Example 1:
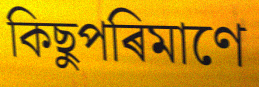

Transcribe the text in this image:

কিছুপৰিমাণে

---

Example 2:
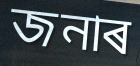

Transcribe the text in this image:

জনাৰ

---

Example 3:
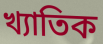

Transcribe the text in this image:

খ্যাতিক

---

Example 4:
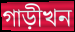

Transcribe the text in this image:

গাড়ীখন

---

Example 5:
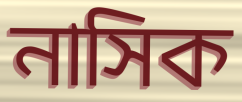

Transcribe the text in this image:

নাসিক